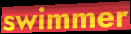
swimmer